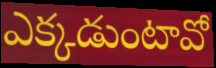
ఎక్కడుంటావో